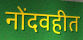
नोंदवहीत